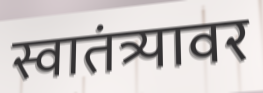
स्वातंत्र्यावर